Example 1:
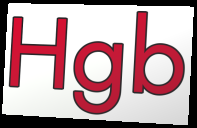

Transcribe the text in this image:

Hgb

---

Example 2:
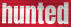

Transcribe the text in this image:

hunted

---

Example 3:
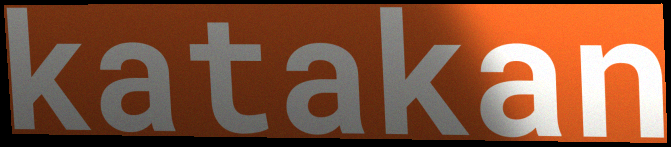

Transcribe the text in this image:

katakan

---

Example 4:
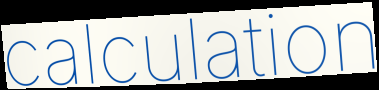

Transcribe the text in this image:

calculation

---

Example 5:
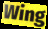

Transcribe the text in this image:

Wing